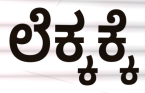
ಲೆಕ್ಕಕ್ಕೆ